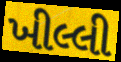
ખીલ્લી